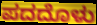
ಪದದೊಳು